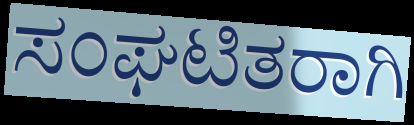
ಸಂಘಟಿತರಾಗಿ